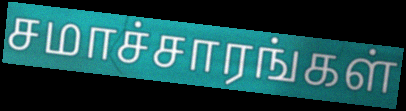
சமாச்சாரங்கள்